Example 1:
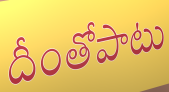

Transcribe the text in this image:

దీంతోపాటు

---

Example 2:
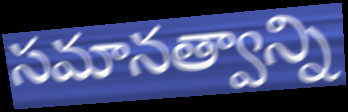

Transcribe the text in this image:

సమానత్వాన్ని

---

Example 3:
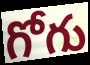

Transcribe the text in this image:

గోగు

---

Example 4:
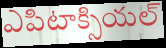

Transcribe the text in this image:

ఎపిటాక్సియల్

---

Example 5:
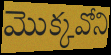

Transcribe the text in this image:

మొక్కవోని